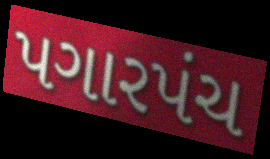
પગારપંચ